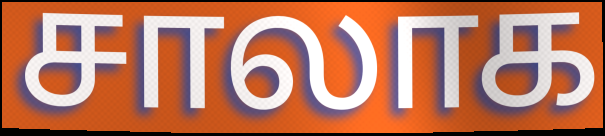
சாலாக